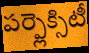
పర్ప్లెక్సిటీ